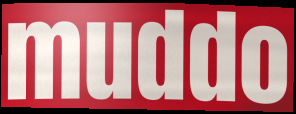
muddo